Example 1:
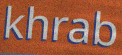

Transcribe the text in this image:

khrab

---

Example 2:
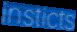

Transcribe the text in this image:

insticts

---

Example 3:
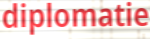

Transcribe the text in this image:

diplomatie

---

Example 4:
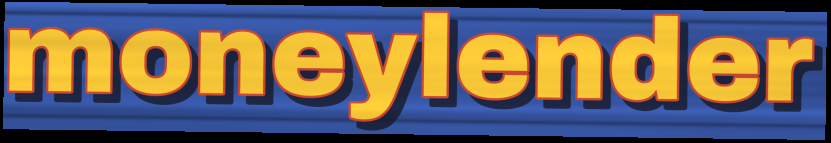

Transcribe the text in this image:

moneylender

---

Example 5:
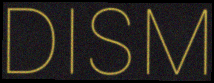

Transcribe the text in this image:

DISM